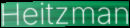
Heitzman